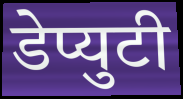
डेप्युटी